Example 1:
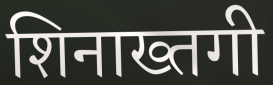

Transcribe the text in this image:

शिनाख्तगी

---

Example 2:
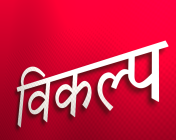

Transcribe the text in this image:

विकल्प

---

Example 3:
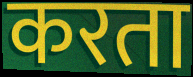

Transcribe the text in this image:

करता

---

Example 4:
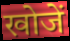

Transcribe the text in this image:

खोजें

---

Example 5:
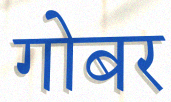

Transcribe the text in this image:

गोबर